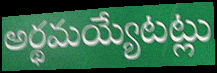
అర్థమయ్యేటట్లు